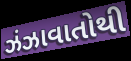
ઝંઝાવાતોથી